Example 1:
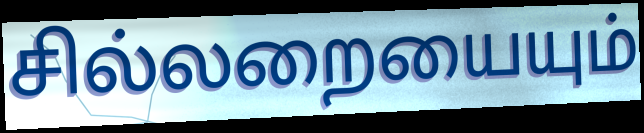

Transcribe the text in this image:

சில்லறையையும்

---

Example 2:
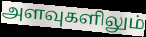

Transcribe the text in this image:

அளவுகளிலும்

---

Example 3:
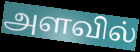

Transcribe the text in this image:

அளவில்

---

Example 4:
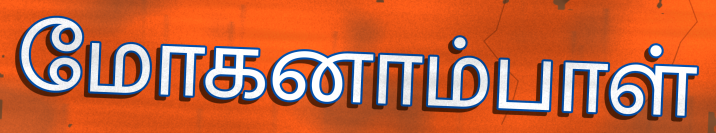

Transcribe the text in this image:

மோகனாம்பாள்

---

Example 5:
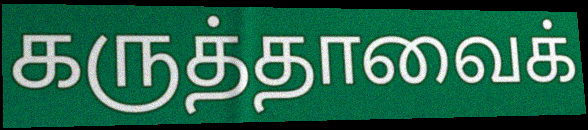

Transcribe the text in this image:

கருத்தாவைக்